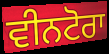
ਵੀਨਟੋਰਾ